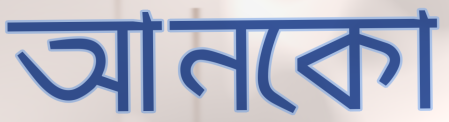
আনকো